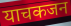
याचकजन